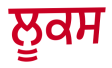
ਲੂਕਸ